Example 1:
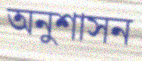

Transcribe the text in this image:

অনুশাসন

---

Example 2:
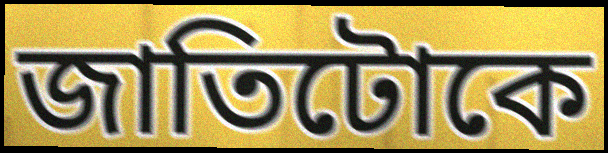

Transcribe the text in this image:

জাতিটোকে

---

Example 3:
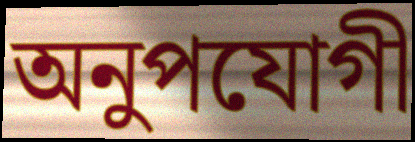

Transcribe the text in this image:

অনুপযোগী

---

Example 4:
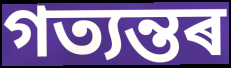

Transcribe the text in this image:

গত্যন্তৰ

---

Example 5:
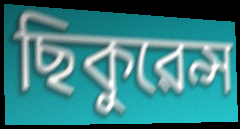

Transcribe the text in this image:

ছিকুৱেন্স